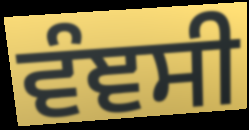
ਵੰਞਸੀ